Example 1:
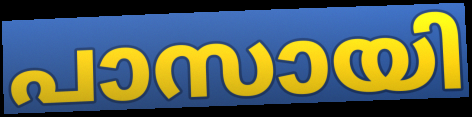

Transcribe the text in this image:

പാസായി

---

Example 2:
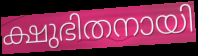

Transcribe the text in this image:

ക്ഷുഭിതനായി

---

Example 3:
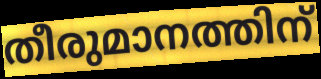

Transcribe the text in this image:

തീരുമാനത്തിന്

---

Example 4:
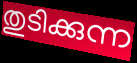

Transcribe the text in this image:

തുടിക്കുന്ന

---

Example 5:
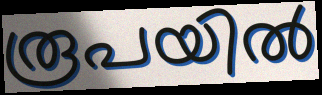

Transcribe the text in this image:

രൂപയിൽ